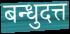
बन्धुदत्त